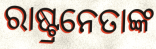
ରାଷ୍ଟ୍ରନେତାଙ୍କ